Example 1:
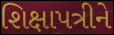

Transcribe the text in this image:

શિક્ષાપત્રીને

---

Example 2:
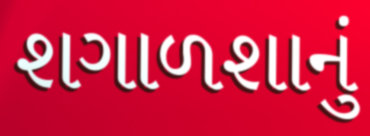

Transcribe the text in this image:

શગાળશાનું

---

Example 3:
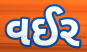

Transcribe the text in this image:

વઈર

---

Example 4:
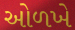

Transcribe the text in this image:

ઓળખે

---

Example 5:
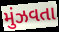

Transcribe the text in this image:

મુંઝવતા